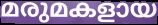
മരുമകളായ